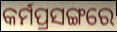
କର୍ମପ୍ରସଙ୍ଗରେ